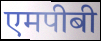
एमपीबी